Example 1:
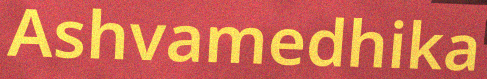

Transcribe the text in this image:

Ashvamedhika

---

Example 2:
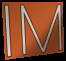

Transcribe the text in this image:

IM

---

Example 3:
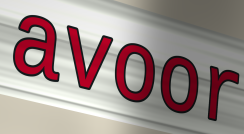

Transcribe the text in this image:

avoor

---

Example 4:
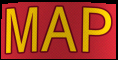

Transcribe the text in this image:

MAP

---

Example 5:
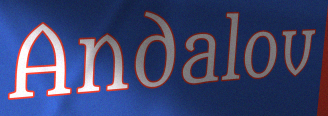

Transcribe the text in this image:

Andalou